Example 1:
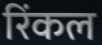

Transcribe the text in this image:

रिंकल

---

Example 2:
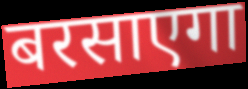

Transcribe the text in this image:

बरसाएगा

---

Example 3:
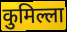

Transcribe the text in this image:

कुमिल्ला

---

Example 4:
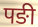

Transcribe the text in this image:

पङी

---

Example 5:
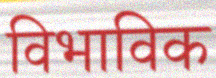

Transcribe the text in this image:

विभाविक